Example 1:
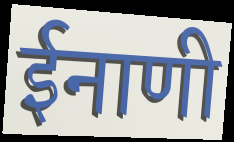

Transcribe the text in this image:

ईनाणी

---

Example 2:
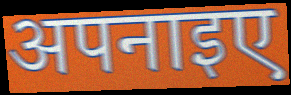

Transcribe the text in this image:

अपनाइए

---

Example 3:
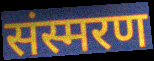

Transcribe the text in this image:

संस्मरण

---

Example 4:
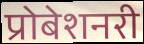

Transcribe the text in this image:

प्रोबेशनरी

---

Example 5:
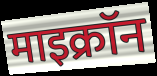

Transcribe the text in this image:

माइक्रॉन